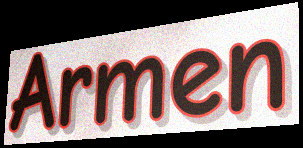
Armen